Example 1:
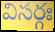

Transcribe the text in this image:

విసర్గః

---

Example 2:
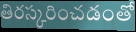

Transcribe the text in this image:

తిరస్కరించడంతో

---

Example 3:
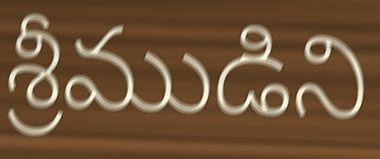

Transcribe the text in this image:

శ్రీముడిని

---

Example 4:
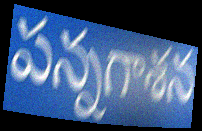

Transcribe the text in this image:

పన్నగాశన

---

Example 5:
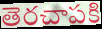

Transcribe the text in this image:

తెరచాపకి